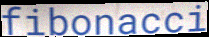
fibonacci